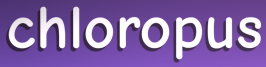
chloropus